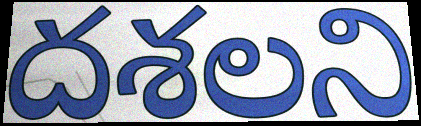
దశలని